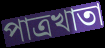
পাত্রখাতা